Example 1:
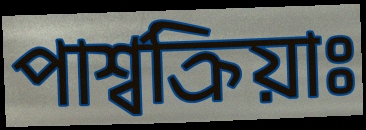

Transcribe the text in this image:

পাৰ্শ্বক্ৰিয়াঃ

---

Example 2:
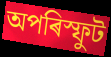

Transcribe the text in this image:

অপৰিস্ফুট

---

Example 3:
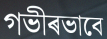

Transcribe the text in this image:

গভীৰভাবে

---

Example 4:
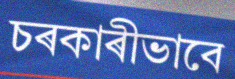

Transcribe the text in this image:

চৰকাৰীভাবে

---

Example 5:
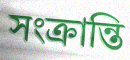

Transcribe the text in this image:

সংক্ৰান্তি